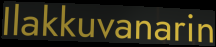
Ilakkuvanarin